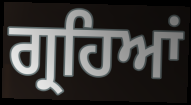
ਗ੍ਰਹਿਆਂ